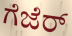
ಗೆಜೆರ್